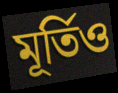
মূৰ্তিও